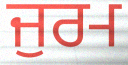
ਜੁਰ੍ਮ